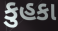
કુહકા